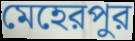
মেহেরপুর